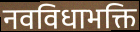
नवविधाभक्ति